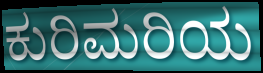
ಕುರಿಮರಿಯ